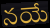
నయే